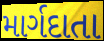
માર્ગદાતા